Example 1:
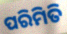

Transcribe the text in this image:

ପରିମିତି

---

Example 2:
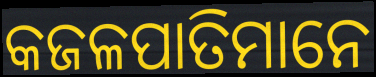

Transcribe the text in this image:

କଜଳପାତିମାନେ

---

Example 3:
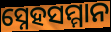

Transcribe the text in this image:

ସ୍ନେହସମ୍ମାନ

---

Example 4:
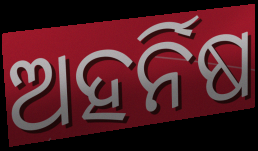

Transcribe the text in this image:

ଅହର୍ନିଷ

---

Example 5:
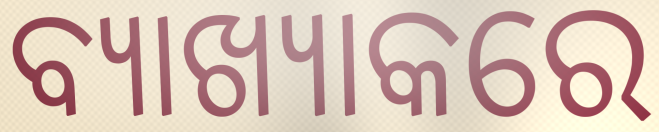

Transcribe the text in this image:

ବ୍ୟାଖ୍ୟାକରେ